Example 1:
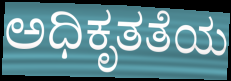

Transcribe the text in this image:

ಅಧಿಕೃತತೆಯ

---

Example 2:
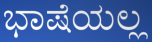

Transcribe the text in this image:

ಭಾಷೆಯಲ್ಲ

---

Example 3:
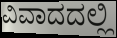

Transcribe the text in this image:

ವಿವಾದದಲ್ಲಿ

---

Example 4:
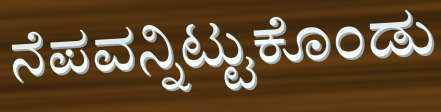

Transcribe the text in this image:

ನೆಪವನ್ನಿಟ್ಟುಕೊಂಡು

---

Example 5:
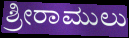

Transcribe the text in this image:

ಶ್ರೀರಾಮುಲು